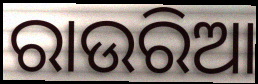
ରାଉରିଆ